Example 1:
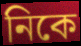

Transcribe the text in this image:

নিকে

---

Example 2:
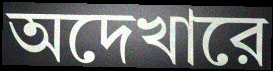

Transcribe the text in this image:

অদেখারে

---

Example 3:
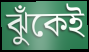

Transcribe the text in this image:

ঝুঁকেই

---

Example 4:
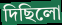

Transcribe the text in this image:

দিছিলো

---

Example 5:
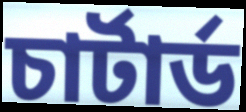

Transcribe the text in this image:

চার্টার্ড